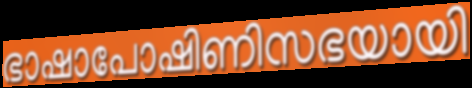
ഭാഷാപോഷിണിസഭയായി